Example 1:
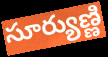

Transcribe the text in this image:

సూర్యుణ్ణి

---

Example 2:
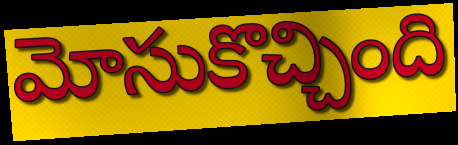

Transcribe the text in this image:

మోసుకొచ్చింది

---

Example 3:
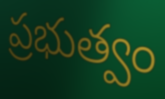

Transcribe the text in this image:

ప్రభుత్వం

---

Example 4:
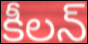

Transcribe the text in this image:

కీలన్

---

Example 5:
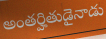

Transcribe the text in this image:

అంతర్హితుడైనాడు